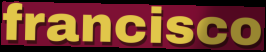
francisco